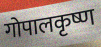
गोपालकृष्ण